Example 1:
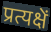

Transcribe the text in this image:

प्रत्यक्षें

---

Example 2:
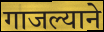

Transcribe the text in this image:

गाजल्याने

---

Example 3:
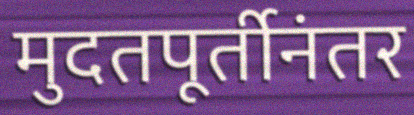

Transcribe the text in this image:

मुदतपूर्तीनंतर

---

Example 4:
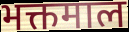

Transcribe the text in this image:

भक्तमाल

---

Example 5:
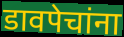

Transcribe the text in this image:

डावपेचांना